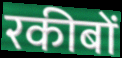
रकीबों